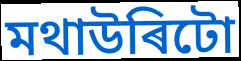
মথাউৰিটো